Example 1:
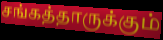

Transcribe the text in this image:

சங்கத்தாருக்கும்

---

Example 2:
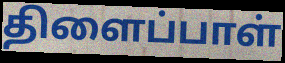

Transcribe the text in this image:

திளைப்பாள்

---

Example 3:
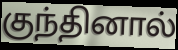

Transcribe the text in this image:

குந்தினால்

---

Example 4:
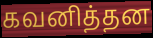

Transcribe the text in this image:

கவனித்தன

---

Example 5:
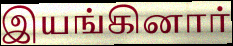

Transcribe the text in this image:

இயங்கினார்